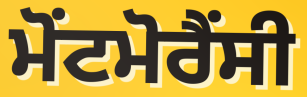
ਮੋਂਟਮੋਰੈਂਸੀ